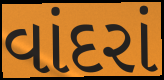
વાંદરાં